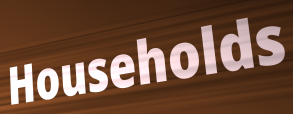
Households